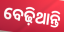
ବେଢ଼ିଥାନ୍ତି